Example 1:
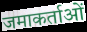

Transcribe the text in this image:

जमाकर्ताओं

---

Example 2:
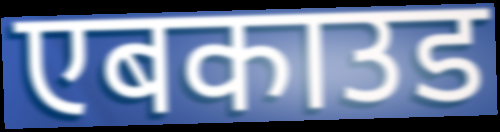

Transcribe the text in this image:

एबकाउड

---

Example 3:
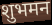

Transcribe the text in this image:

शुभमन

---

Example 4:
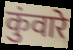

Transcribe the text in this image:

कुंवारे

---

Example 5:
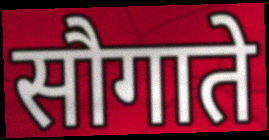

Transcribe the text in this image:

सौगाते